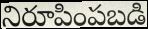
నిరూపింపబడి